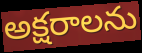
అక్షరాలను